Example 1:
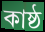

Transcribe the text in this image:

কাষ্ঠ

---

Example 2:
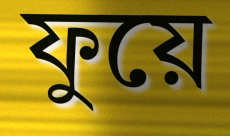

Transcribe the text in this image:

ফুয়ে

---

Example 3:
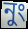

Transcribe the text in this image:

নুং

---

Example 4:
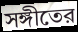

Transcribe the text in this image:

সঙ্গীতের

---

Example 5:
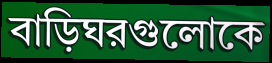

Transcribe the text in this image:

বাড়িঘরগুলোকে